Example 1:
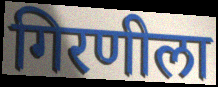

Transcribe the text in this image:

गिरणीला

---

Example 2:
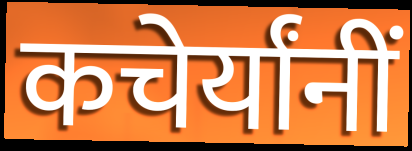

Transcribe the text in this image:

कचेर्यांनीं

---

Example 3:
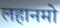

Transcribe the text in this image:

लहानमो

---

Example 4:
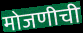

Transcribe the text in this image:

मोजणीची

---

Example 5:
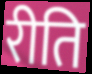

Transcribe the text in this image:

रीति